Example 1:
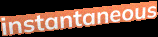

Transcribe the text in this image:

instantaneous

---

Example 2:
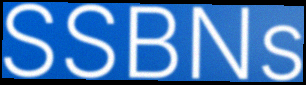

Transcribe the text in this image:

SSBNs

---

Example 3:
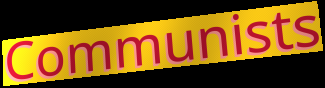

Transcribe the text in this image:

Communists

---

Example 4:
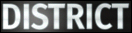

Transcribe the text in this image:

DISTRICT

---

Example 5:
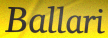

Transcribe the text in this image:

Ballari